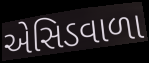
એસિડવાળા